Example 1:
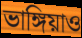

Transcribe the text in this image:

ভাঙ্গিয়াও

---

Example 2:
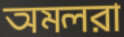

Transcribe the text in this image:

অমলরা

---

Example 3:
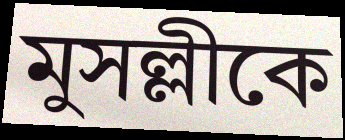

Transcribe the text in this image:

মুসল্লীকে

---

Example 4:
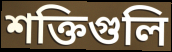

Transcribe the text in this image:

শক্তিগুলি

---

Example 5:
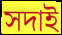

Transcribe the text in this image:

সদাই